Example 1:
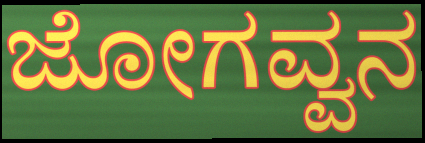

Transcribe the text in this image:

ಜೋಗವ್ವನ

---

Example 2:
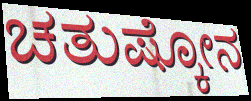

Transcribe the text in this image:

ಚತುಷ್ಕೋನ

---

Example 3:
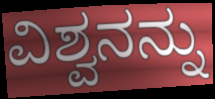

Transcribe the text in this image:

ವಿಶ್ವನನ್ನು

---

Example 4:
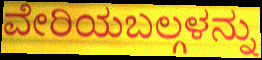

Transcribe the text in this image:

ವೇರಿಯಬಲ್ಗಳನ್ನು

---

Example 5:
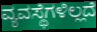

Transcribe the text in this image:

ವ್ಯವಸ್ಥೆಗಳಿಲ್ಲದೆ